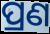
ପ୍ରଣ